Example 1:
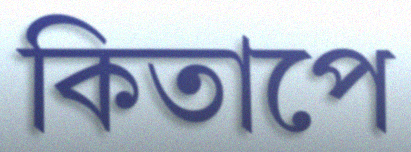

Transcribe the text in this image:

কিতাপে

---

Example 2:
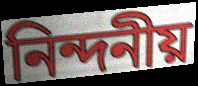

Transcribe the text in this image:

নিন্দনীয়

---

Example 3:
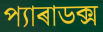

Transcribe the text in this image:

প্যাৰাডক্স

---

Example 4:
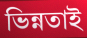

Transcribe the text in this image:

ভিন্নতাই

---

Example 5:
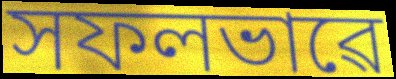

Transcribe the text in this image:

সফলভাৱে